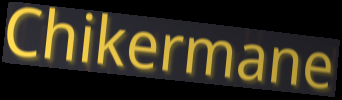
Chikermane